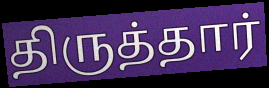
திருத்தார்